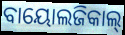
ବାୟୋଲଜିକାଲ୍